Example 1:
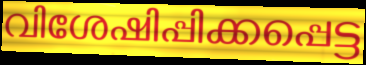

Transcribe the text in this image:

വിശേഷിപ്പിക്കപ്പെട്ട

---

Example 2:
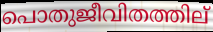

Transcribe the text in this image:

പൊതുജീവിതത്തില്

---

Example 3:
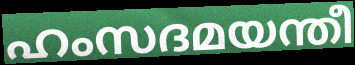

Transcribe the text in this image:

ഹംസദമയന്തീ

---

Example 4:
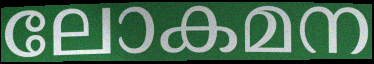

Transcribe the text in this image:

ലോകമന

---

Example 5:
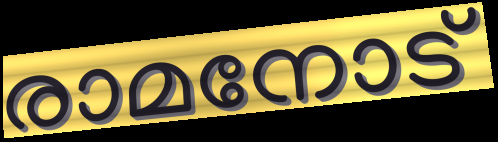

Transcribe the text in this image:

രാമനോട്